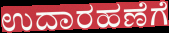
ಉದಾರಹಣೆಗೆ